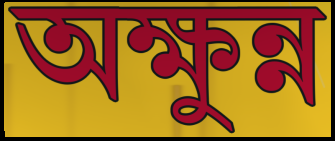
অক্ষুন্ন